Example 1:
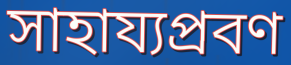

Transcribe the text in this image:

সাহায্যপ্রবণ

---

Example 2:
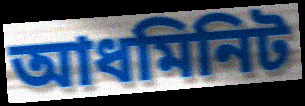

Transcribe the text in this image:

আধমিনিট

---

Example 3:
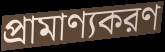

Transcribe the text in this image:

প্রামাণ্যকরণ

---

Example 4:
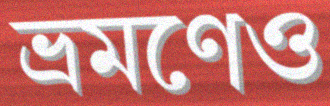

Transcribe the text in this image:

ভ্রমণেও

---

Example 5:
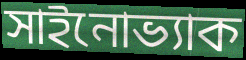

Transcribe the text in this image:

সাইনোভ্যাক